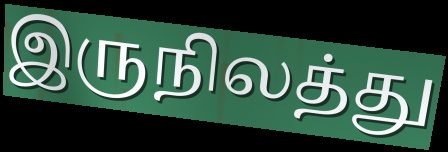
இருநிலத்து